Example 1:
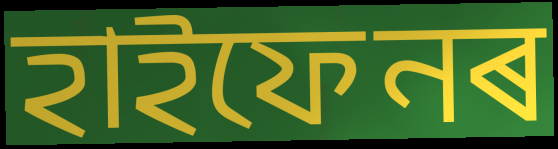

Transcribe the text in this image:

হাইফেনৰ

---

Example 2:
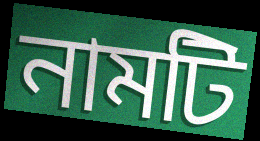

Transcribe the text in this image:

নামটি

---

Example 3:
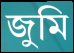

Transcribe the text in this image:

জুমি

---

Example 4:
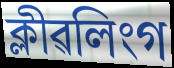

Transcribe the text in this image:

ক্লীৱলিংগ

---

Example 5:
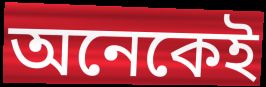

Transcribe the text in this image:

অনেকেই